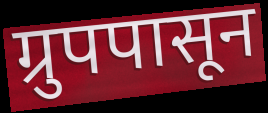
ग्रुपपासून